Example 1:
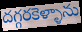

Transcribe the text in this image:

దగ్గరకెళ్ళాను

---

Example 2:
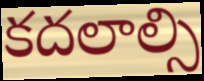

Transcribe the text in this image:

కదలాల్సి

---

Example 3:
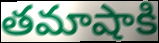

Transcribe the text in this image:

తమాషాకి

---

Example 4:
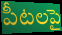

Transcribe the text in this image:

పీటలపై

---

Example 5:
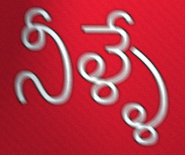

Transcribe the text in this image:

నీళ్ళే